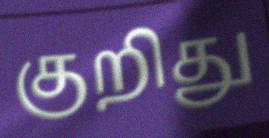
குறிது